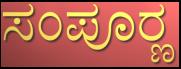
ಸಂಪೂರ್‍ಣ